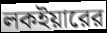
লকইয়ারের